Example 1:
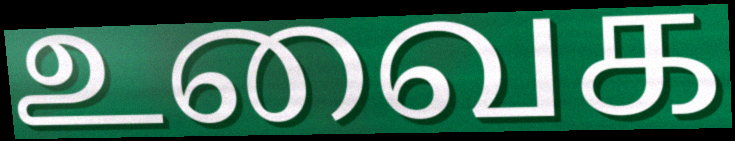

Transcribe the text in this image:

உவைக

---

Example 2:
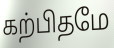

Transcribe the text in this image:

கற்பிதமே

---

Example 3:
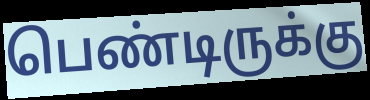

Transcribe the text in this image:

பெண்டிருக்கு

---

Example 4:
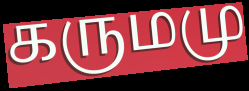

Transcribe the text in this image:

கருமமு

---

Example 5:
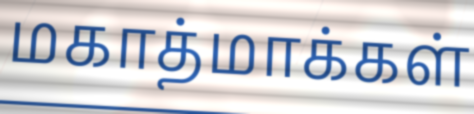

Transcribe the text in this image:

மகாத்மாக்கள்